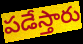
పడేస్తారు